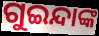
ଗୁଇନ୍ଦାଙ୍କ